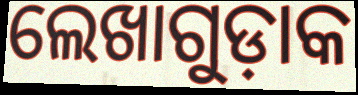
ଲେଖାଗୁଡ଼ାକ